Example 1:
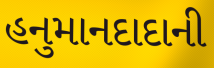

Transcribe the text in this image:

હનુમાનદાદાની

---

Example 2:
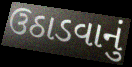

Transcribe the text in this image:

ઉઠાડવાનું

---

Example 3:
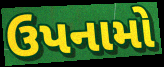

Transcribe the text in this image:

ઉપનામો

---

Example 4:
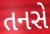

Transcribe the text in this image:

તનસે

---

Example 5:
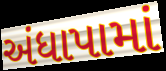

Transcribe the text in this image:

અંધાપામાં